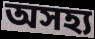
অসহ্য